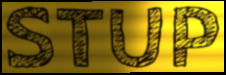
STUP